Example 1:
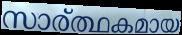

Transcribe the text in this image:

സാര്ത്ഥകമായ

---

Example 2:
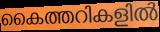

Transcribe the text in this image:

കൈത്തറികളിൽ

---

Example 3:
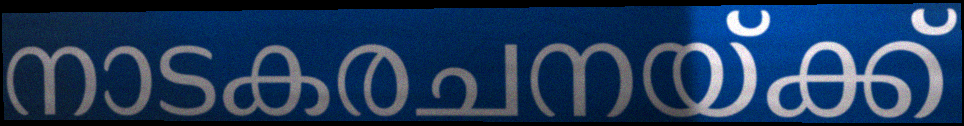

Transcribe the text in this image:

നാടകരചനയ്ക്ക്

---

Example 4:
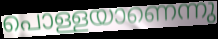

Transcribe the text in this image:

പൊള്ളയാണെന്നു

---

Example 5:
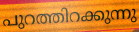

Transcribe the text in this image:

പുറത്തിറക്കുന്നു